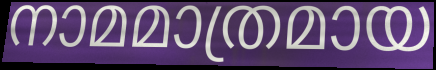
നാമമാത്രമായ